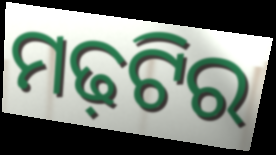
ମଢ଼ଟିର